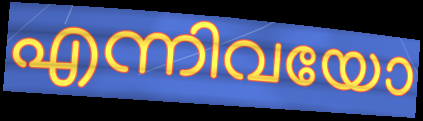
എന്നിവയോ